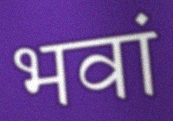
भवां